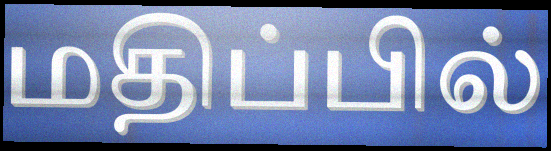
மதிப்பில்